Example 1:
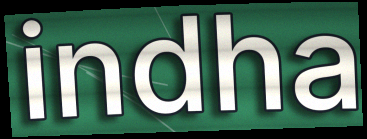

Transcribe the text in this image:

indha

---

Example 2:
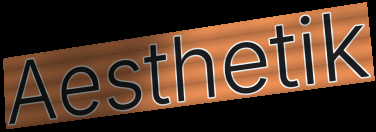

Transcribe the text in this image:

Aesthetik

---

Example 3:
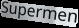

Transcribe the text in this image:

Supermen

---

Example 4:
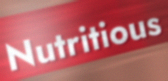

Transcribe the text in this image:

Nutritious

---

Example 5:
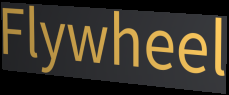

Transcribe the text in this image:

Flywheel